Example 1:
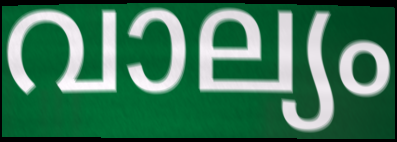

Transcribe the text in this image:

വാല്യം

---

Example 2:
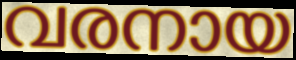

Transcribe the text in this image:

വരനായ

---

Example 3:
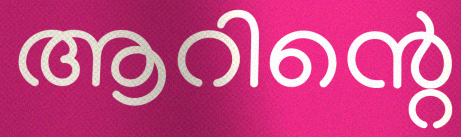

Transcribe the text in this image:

ആറിന്റെ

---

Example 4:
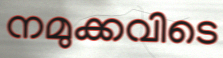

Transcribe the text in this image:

നമുക്കവിടെ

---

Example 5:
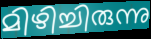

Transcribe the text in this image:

മിഴിച്ചിരുന്നു